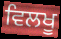
ਵਿਲਖੂ